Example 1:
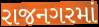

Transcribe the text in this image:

રાજનગરમાં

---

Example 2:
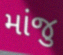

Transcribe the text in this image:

માંજુ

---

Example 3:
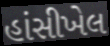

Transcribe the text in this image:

હાંસીખેલ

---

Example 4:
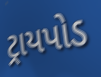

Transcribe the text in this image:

ટ્રાયપોડ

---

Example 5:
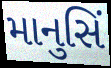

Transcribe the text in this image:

માનુસિં